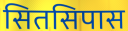
सितसिपास